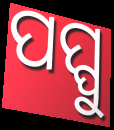
ପପ୍ପୁ